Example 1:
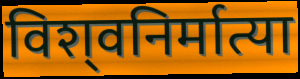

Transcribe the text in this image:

विश्वनिर्मात्या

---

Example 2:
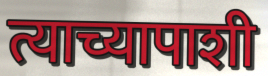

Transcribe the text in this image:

त्याच्यापाशी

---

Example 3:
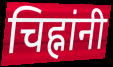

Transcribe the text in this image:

चिह्नांनी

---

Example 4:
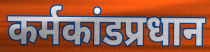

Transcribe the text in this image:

कर्मकांडप्रधान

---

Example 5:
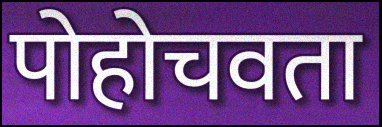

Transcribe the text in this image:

पोहोचवता